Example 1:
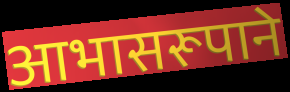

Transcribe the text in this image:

आभासरूपाने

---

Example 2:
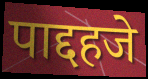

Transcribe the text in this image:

पाद्दहजे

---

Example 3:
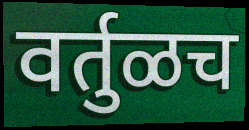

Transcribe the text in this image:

वर्तुळच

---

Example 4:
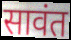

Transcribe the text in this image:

सावंत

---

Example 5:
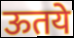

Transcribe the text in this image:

ऊतये